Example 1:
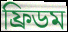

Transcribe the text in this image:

ফ্ৰিডম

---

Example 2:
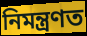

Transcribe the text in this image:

নিমন্ত্ৰণত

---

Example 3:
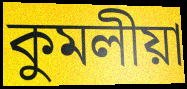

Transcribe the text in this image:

কুমলীয়া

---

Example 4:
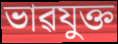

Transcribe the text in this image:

ভাৱযুক্ত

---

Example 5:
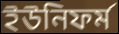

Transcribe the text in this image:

ইউনিফৰ্ম